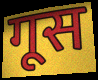
गूस